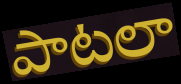
పాటలా